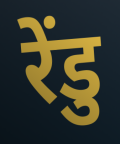
रेंडु